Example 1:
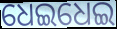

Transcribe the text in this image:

ଧେଇଧେଇ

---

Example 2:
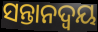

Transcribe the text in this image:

ସନ୍ତାନଦ୍ୱୟ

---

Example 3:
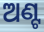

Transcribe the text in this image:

ଅଣ୍ଟ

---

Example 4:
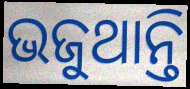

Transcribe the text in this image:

ଭଜୁଥାନ୍ତି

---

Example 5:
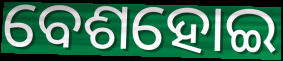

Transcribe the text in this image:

ବେଶହୋଇ